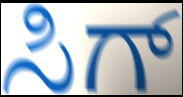
ಸಿಗ್